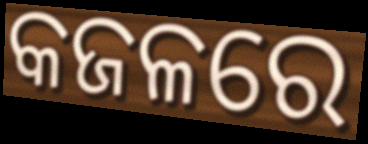
କଜଳରେ